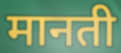
मानती